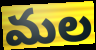
మల